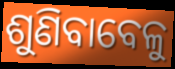
ଶୁଣିବାବେଳୁ